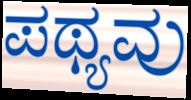
ಪಥ್ಯವು